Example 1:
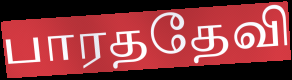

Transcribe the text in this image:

பாரததேவி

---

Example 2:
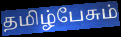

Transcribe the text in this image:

தமிழ்பேசும்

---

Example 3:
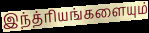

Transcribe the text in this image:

இந்த்ரியங்களையும்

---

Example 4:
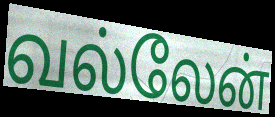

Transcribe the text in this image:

வல்லேன்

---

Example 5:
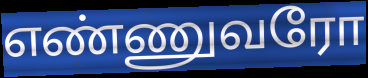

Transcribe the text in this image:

எண்ணுவரோ